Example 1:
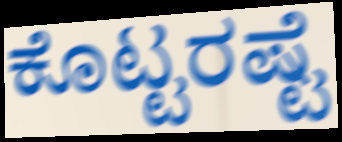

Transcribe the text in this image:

ಕೊಟ್ಟರಷ್ಟೆ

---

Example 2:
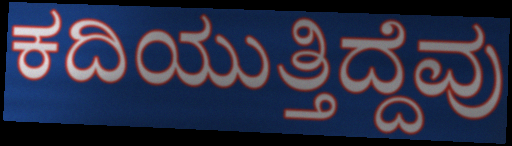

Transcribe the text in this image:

ಕದಿಯುತ್ತಿದ್ದೆವು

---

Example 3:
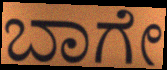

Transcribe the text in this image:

ಬಾಗೇ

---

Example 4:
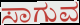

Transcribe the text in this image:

ಸಾಗುವ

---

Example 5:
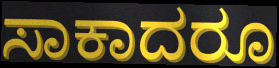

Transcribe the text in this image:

ಸಾಕಾದರೂ